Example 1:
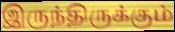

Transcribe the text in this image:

இருந்திருக்கும்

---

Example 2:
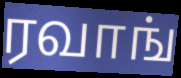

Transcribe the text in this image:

ரவாங்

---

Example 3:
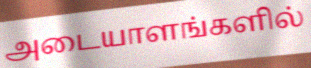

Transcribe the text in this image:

அடையாளங்களில்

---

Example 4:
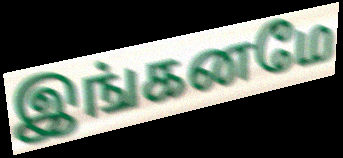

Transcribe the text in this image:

இங்கனமே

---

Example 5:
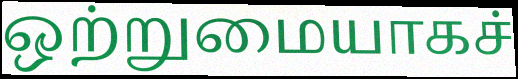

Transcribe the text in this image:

ஒற்றுமையாகச்